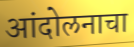
आंदोलनाचा